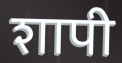
शापी